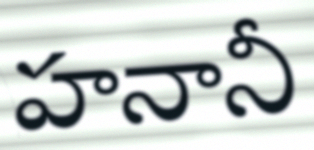
హనానీ